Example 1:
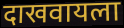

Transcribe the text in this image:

दाखवायला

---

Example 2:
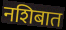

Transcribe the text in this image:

नशिबात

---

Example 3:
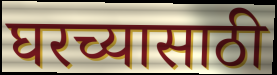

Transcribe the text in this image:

घरच्यासाठी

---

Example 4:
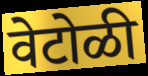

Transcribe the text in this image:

वेटोळी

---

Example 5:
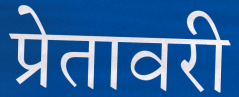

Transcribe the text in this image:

प्रेतावरी